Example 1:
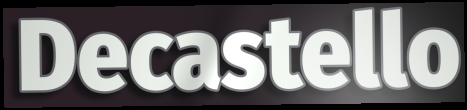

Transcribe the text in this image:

Decastello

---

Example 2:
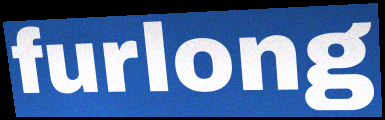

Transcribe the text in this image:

furlong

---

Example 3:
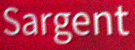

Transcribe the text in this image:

Sargent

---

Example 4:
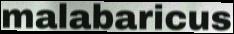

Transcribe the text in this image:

malabaricus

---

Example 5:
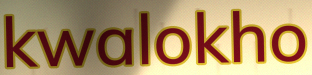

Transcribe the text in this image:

kwalokho